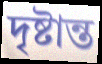
দৃষ্টান্ত